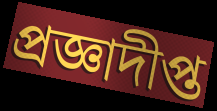
প্রজ্ঞাদীপ্ত